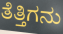
ತೆತ್ತಿಗನು